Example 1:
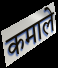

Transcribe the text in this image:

कमाले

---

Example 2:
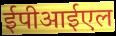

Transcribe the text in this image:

ईपीआईएल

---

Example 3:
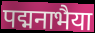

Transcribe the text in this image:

पद्मनाभैया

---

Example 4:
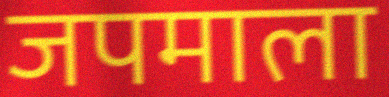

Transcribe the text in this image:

जपमाला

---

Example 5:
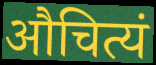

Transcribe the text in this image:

औचित्यं